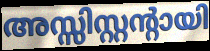
അസ്സിസ്റ്റന്റായി